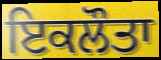
ਇਕਲੌਤਾ